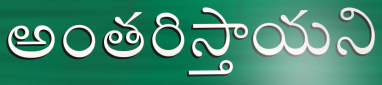
అంతరిస్తాయని